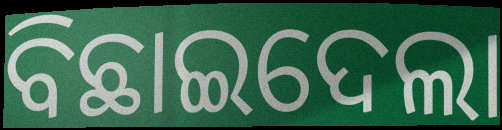
ବିଛାଇଦେଲା